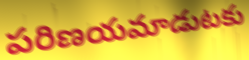
పరిణయమాడుటకు